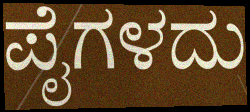
ಪೈಗಳದು